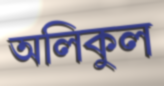
অলিকুল